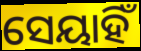
ସେୟାହିଁ